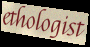
ethologist